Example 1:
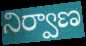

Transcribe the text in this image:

నిర్వాణ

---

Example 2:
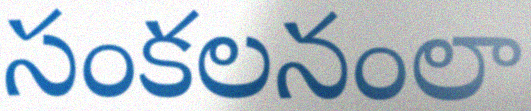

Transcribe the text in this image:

సంకలనంలా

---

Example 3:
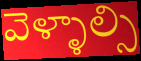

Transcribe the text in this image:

వెళ్ళాల్సి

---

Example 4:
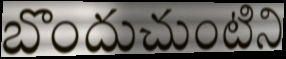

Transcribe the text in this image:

బొందుచుంటిని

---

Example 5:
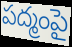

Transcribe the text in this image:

పద్మంపై